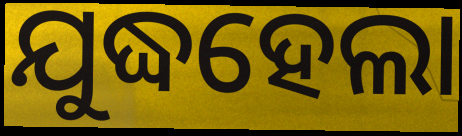
ଯୁଦ୍ଧହେଲା